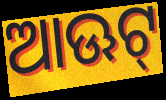
ଆଊଟ୍